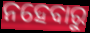
ନହେବାରୁ